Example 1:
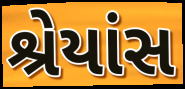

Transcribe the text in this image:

શ્રેયાંસ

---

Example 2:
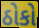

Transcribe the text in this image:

ઠોકો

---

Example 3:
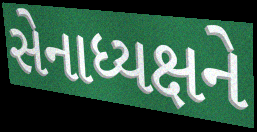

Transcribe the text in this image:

સેનાધ્યક્ષને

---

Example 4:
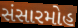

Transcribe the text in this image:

સંસારમોહ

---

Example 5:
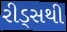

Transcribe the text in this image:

રીડ્સથી